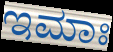
ಇಮಾಃ